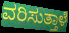
ವರಿಸುತ್ತಾಳೆ